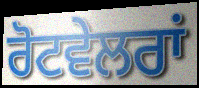
ਰੋਟਵੇਲਰਾਂ